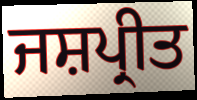
ਜਸ਼ਪ੍ਰੀਤ